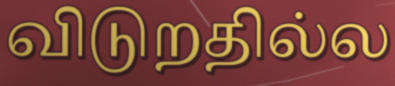
விடுறதில்ல